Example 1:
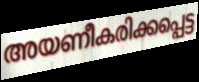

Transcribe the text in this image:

അയണീകരിക്കപ്പെട്ട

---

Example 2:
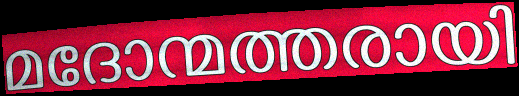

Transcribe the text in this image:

മദോന്മത്തരായി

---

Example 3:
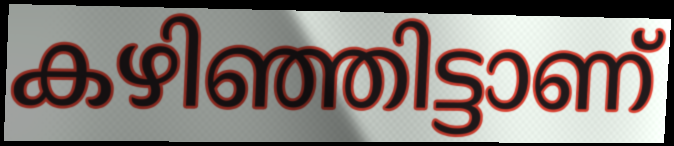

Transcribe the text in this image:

കഴിഞ്ഞിട്ടാണ്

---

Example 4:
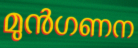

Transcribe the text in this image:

മുൻഗണന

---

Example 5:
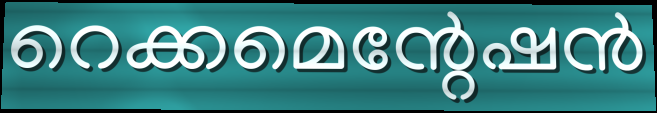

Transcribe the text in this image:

റെക്കമെന്റേഷൻ